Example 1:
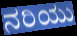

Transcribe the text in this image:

ನರಿಯು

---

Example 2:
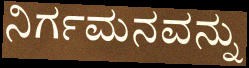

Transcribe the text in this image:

ನಿರ್ಗಮನವನ್ನು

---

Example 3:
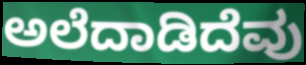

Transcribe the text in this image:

ಅಲೆದಾಡಿದೆವು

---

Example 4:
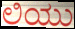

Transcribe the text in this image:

ಲಿಯು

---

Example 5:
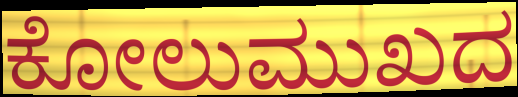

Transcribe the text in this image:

ಕೋಲುಮುಖದ